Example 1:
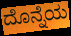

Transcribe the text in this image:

ದೊನ್ನೆಯ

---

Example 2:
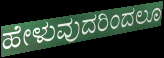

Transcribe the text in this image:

ಹೇಳುವುದರಿಂದಲೂ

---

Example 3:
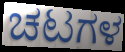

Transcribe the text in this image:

ಚಟಗಳ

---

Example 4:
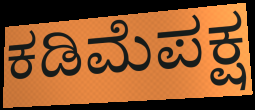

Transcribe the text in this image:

ಕಡಿಮೆಪಕ್ಷ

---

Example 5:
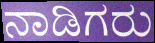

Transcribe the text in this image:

ನಾಡಿಗರು